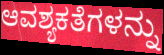
ಆವಶ್ಯಕತೆಗಳನ್ನು